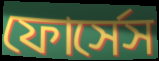
ফোর্সেস